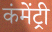
कंमेंट्री